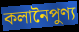
কলানৈপুণ্য